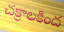
చక్రాలకింద